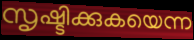
സൃഷ്ടിക്കുകയെന്ന